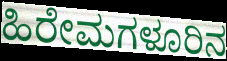
ಹಿರೇಮಗಳೂರಿನ